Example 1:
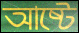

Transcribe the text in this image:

আষ্টে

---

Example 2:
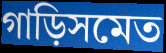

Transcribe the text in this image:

গাড়িসমেত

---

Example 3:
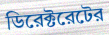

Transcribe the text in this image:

ডিরেক্টরেটের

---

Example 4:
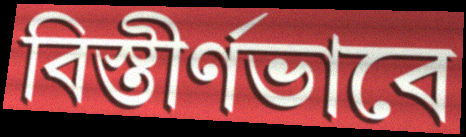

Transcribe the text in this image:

বিস্তীর্ণভাবে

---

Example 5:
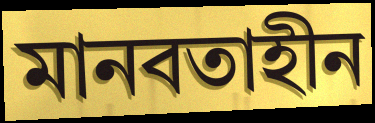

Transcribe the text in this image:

মানবতাহীন